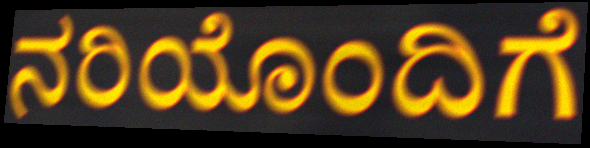
ನರಿಯೊಂದಿಗೆ